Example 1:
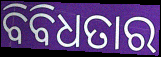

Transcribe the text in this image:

ବିବିଧତାର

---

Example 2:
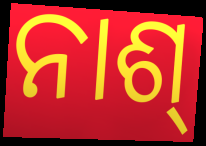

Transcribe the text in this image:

ନାଶ୍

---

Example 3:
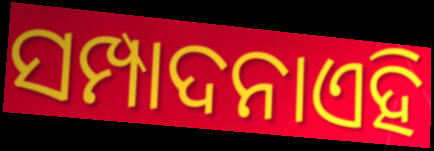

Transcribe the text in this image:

ସମ୍ପାଦନାଏହି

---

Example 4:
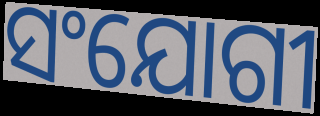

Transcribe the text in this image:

ସଂଯୋଗୀ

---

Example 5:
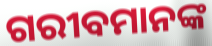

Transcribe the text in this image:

ଗରୀବମାନଙ୍କ